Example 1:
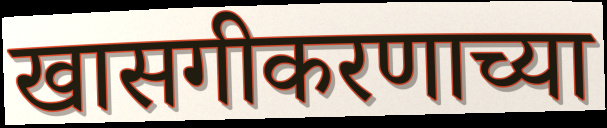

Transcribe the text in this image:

खासगीकरणाच्या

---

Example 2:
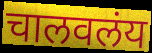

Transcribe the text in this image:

चालवलंय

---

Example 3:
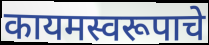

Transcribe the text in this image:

कायमस्वरूपाचे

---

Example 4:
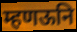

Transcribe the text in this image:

म्हणऊनि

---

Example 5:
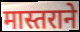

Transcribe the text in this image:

मास्तराने